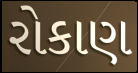
રોકાણ